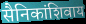
सैनिकांशिवाय